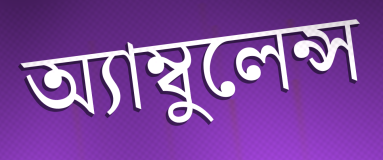
অ্যাম্বুলেন্স